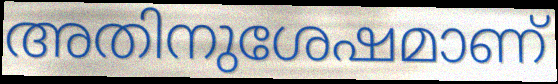
അതിനുശേഷമാണ്